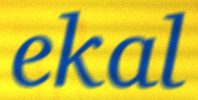
ekal